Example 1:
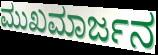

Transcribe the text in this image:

ಮುಖಮಾರ್ಜನ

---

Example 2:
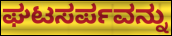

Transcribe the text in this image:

ಘಟಸರ್ಪವನ್ನು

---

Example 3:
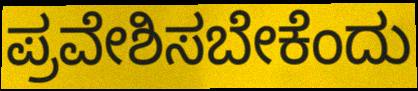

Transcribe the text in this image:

ಪ್ರವೇಶಿಸಬೇಕೆಂದು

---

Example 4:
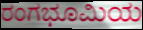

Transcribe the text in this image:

ರಂಗಭೂಮಿಯ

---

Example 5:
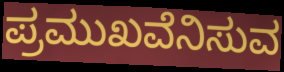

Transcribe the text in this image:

ಪ್ರಮುಖವೆನಿಸುವ